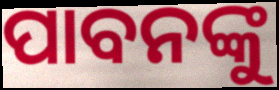
ପାବନଙ୍କୁ